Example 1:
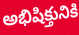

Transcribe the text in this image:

అభిషిక్తునికి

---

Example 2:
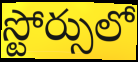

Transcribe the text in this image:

స్టోర్సులో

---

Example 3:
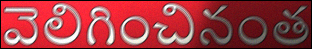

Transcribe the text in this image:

వెలిగించినంత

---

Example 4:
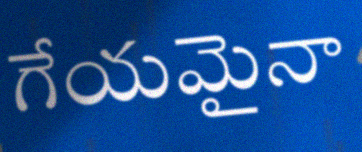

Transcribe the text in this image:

గేయమైనా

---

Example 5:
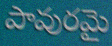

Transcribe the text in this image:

పావురమై